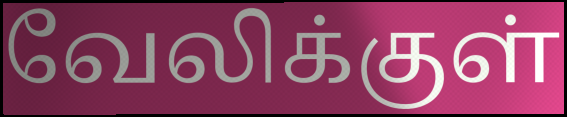
வேலிக்குள்